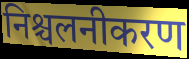
निश्चलनीकरण